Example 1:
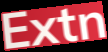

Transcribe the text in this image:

Extn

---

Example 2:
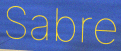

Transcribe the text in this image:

Sabre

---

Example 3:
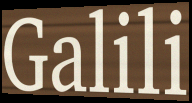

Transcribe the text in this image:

Galili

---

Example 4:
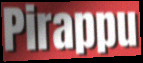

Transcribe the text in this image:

Pirappu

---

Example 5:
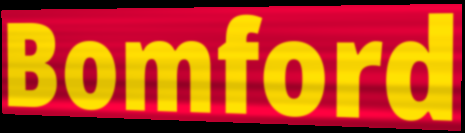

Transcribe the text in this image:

Bomford